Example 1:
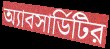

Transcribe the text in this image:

অ্যাবসার্ডিটির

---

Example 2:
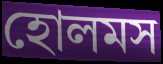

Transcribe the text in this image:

হোলমস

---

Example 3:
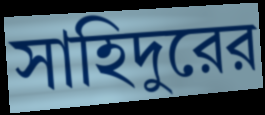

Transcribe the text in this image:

সাহিদুরের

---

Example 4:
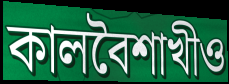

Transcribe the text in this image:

কালবৈশাখীও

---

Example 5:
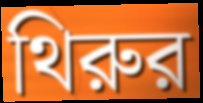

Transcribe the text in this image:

থিরুর